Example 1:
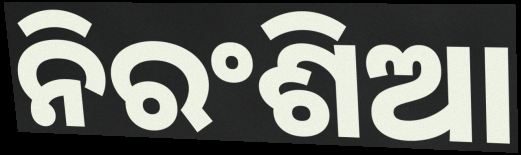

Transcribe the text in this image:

ନିରଂଶିଆ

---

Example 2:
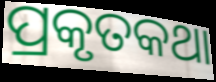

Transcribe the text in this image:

ପ୍ରକୃତକଥା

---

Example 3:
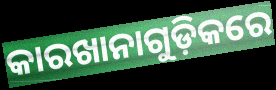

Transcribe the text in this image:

କାରଖାନାଗୁଡ଼ିକରେ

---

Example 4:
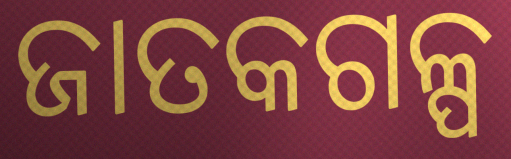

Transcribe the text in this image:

ଜାତକଗଳ୍ପ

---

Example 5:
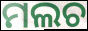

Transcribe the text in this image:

ମଲଚ